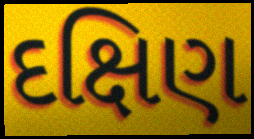
દક્ષિણ